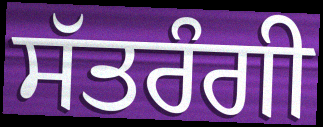
ਸੱਤਰੰਗੀ